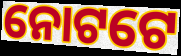
ନୋଟଟେ